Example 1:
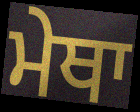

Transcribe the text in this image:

ਮੇਥਾ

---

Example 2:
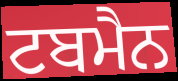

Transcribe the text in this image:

ਟਬਮੈਨ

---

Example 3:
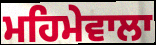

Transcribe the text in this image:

ਮਹਿਮੇਵਾਲਾ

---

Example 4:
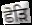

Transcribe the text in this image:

ਛੋੜਿ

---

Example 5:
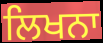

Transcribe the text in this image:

ਲਿਖਨਾ